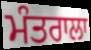
ਮੰਤਰਾਲਾ